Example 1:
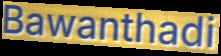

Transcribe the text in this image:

Bawanthadi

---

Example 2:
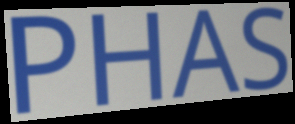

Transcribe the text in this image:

PHAS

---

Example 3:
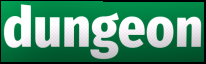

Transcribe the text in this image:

dungeon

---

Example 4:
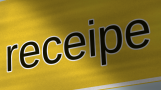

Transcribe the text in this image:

receipe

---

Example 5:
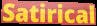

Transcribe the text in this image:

Satirical